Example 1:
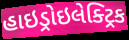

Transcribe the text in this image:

હાઇડ્રોઇલેક્ટ્રિક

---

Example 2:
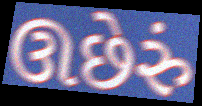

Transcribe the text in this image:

ઊછેરું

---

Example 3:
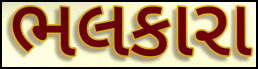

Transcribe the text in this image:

ભલકારા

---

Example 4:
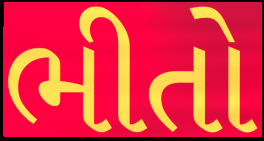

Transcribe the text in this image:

ભીતો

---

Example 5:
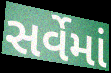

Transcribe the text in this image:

સર્વેમાં